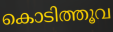
കൊടിത്തൂവ